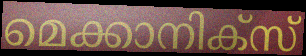
മെക്കാനിക്സ്